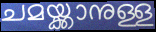
ചമയ്ക്കാനുള്ള